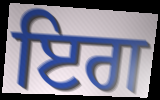
ਇਗ